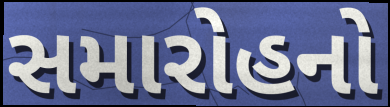
સમારોહનો